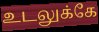
உடலுக்கே